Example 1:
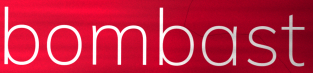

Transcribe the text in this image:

bombast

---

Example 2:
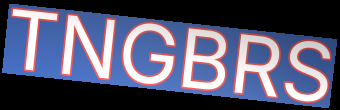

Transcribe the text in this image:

TNGBRS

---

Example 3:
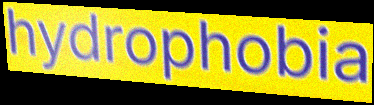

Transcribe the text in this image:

hydrophobia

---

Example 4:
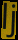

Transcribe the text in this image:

lj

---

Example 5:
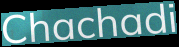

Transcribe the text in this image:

Chachadi